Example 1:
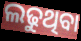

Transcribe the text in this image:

ଲଢୁଥିବା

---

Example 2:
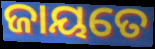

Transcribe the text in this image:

ଜାୟତେ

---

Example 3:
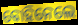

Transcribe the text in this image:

ବୋହିନେଲେ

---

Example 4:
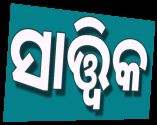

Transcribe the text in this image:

ସାତ୍ତ୍ବିକ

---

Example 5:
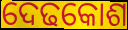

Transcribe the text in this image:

ଦେଢକୋଶ